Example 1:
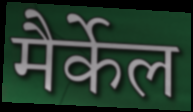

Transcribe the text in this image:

मैर्केल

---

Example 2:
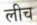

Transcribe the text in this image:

लीच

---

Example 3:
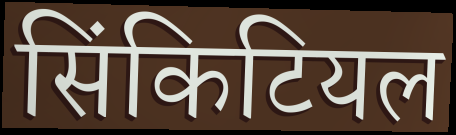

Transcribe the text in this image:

सिंकिटियल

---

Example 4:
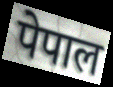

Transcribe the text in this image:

पेपाल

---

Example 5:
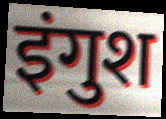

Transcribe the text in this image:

इंगुश